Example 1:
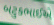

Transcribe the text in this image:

બટુકભાઈએ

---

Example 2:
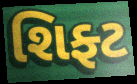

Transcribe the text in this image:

શિફ્ટ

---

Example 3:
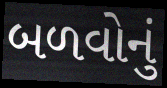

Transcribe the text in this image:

બળવોનું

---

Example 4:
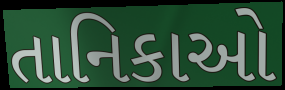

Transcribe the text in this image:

તાનિકાઓ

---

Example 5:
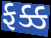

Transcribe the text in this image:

ફક્ક